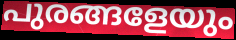
പുരങ്ങളേയും